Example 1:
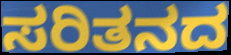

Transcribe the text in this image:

ಸರಿತನದ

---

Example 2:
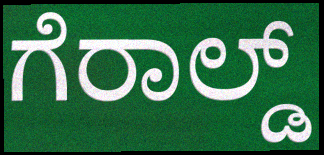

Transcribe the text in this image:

ಗೆರಾಲ್ಡ್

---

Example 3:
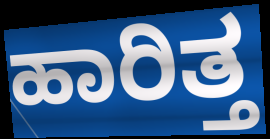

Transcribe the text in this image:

ಹಾರಿತ್ತ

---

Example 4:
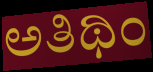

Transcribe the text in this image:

ಅತಿಥಿಂ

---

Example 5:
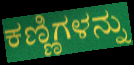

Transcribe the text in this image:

ಕಣ್ಣಿಗಳನ್ನು